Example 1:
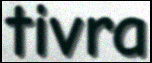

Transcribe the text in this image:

tivra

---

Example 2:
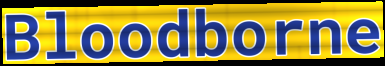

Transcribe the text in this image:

Bloodborne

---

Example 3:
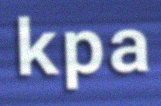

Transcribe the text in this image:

kpa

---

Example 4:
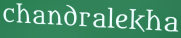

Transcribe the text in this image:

chandralekha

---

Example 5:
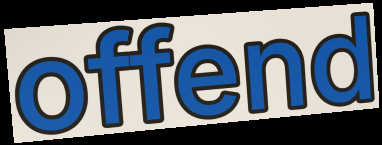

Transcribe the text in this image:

offend